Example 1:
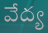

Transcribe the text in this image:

వేద్య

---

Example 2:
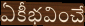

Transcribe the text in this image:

ఏకీభవించే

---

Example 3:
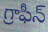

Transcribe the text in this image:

గ్రాఫీన్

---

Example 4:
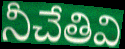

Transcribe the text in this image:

నీచేతివి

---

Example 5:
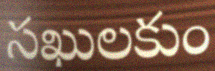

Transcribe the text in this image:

సఖులకుం